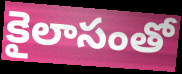
కైలాసంతో